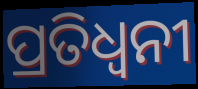
ପ୍ରତିଧ୍ଵନୀ